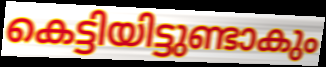
കെട്ടിയിട്ടുണ്ടാകും